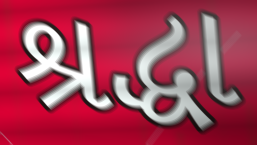
શ્રદ્ધા